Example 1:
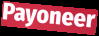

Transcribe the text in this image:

Payoneer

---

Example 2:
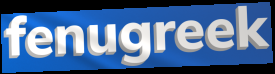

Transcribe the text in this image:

fenugreek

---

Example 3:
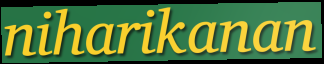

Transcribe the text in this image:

niharikanan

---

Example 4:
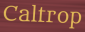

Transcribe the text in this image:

Caltrop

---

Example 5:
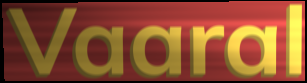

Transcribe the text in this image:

Vaaral